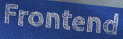
Frontend